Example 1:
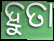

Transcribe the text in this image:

ହୁତା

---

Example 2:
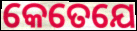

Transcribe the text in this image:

କେତେଯେ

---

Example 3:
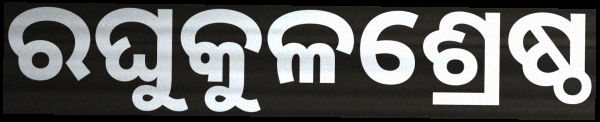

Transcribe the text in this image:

ରଘୁକୁଳଶ୍ରେଷ୍ଠ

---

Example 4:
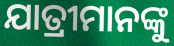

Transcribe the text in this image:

ଯାତ୍ରୀମାନଙ୍କୁ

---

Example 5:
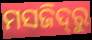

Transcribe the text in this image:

ମସଜିଦ୍‌ରୁ